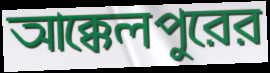
আক্কেলপুরের